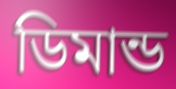
ডিমান্ড